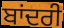
ਬਾਂਦਰੀ